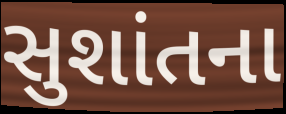
સુશાંતના